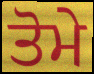
ਤੋਮੇ